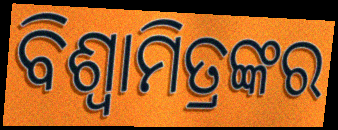
ବିଶ୍ବାମିତ୍ରଙ୍କର